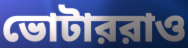
ভোটাররাও